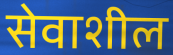
सेवाशील